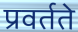
प्रवर्तते